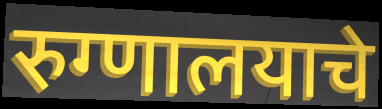
रुग्णालयाचे